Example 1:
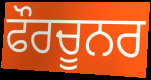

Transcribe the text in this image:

ਫੌਰਚੂਨਰ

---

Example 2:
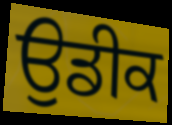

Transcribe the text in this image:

ਉਡੀਕ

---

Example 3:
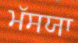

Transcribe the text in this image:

ਮੱਸਯਾ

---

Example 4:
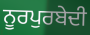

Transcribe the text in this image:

ਨੂਰਪੁਰਬੇਦੀ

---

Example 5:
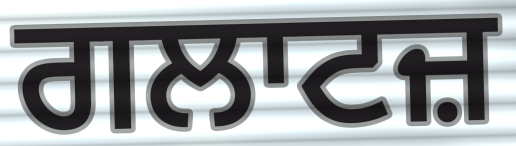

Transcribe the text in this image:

ਗਲਾਟਜ਼